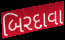
બિરદાવા